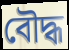
বৌদ্ধ